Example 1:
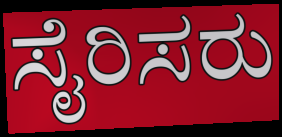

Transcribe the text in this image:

ಸೈರಿಸರು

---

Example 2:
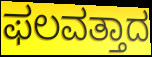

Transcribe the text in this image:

ಫಲವತ್ತಾದ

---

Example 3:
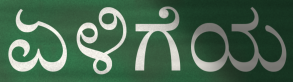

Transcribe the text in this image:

ಏಳಿಗೆಯ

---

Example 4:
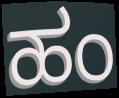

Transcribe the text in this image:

ಹಂ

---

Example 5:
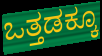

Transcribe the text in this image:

ಒತ್ತಡಕ್ಕೂ